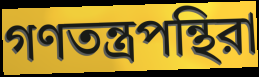
গণতন্ত্রপন্থিরা